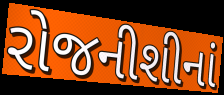
રોજનીશીનાં